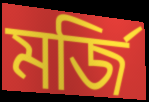
মর্জি